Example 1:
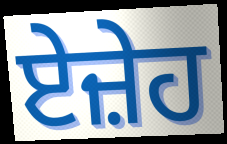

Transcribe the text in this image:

ਏਜ਼ੇਹ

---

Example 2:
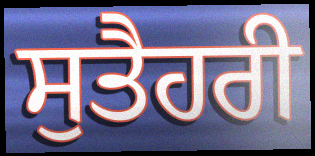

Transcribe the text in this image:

ਸੁਤੈਹਰੀ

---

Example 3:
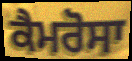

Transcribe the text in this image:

ਕੈਮਰੋਸਾ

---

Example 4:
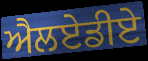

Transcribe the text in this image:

ਐਲਏਡੀਏ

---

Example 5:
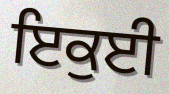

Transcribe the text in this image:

ਇਕੁਈ